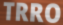
TRRO